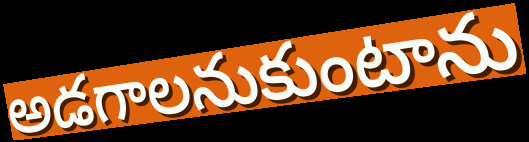
అడగాలనుకుంటాను